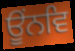
ਊਂਨਵਿ